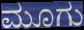
ಮೂಗು